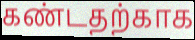
கண்டதற்காக